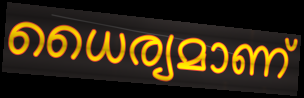
ധൈര്യമാണ്